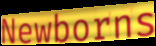
Newborns